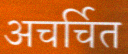
अचर्चित